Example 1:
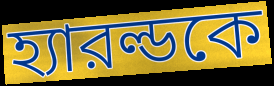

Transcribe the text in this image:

হ্যারল্ডকে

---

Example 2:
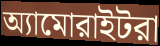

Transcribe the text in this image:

অ্যামোরাইটরা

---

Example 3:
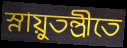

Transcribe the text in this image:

স্নায়ুতন্ত্রীতে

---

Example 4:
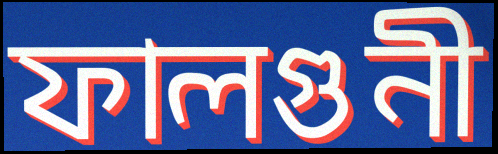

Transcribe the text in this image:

ফালগুনী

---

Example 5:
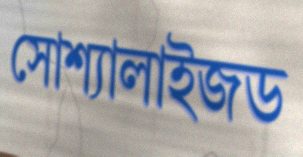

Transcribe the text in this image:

সোশ্যালাইজড